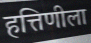
हत्तिणीला